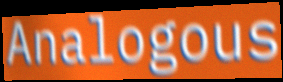
Analogous